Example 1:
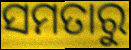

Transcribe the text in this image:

ସମତାରୁ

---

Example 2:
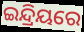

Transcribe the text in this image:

ଇନ୍ଦ୍ରିୟରେ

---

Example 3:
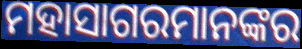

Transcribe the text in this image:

ମହାସାଗରମାନଙ୍କର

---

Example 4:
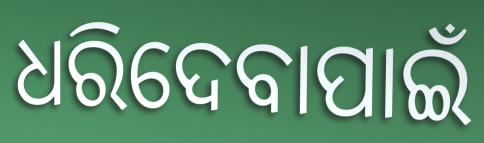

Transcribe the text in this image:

ଧରିଦେବାପାଇଁ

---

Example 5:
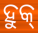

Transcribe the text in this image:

ହୁକ୍